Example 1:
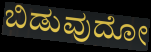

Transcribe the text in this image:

ಬಿಡುವುದೋ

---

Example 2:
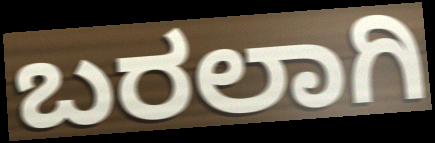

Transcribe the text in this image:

ಬರಲಾಗಿ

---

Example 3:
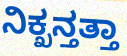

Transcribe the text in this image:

ನಿಕ್ಖನ್ತತ್ತಾ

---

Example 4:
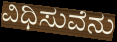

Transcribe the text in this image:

ವಿಧಿಸುವೆನು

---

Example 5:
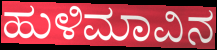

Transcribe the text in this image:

ಹುಳಿಮಾವಿನ